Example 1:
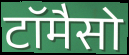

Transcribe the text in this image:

टॉमैसो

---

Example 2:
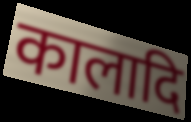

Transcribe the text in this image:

कालादि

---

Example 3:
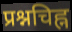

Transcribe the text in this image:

प्रश्नचिह्न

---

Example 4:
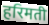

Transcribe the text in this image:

हरिमती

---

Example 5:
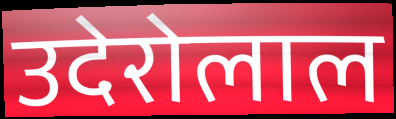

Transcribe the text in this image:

उदेरोलाल